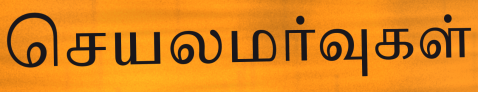
செயலமர்வுகள்